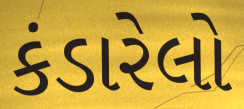
કંડારેલો